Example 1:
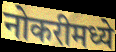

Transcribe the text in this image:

नोकरीमध्ये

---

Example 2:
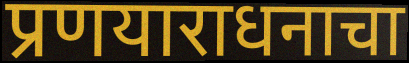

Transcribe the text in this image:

प्रणयाराधनाचा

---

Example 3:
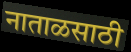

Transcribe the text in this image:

नाताळसाठी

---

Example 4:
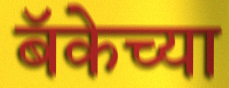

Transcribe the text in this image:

बॅकेच्या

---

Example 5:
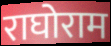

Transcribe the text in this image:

राघोराम